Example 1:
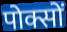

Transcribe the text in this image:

पोक्सों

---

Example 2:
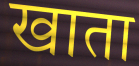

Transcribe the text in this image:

खाता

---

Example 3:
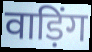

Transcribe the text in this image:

वाड़िंग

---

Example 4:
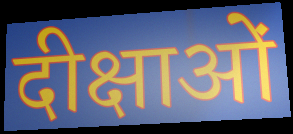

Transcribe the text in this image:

दीक्षाओं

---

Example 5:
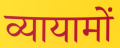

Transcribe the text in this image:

व्यायामों